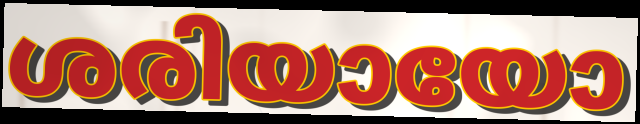
ശരിയായോ